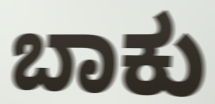
ಬಾಕು